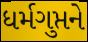
ધર્મગુપ્તને